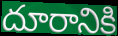
దూరానికి